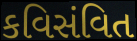
કવિસંવિત